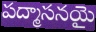
పద్మాసనయై